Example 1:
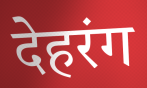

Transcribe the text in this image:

देहरंग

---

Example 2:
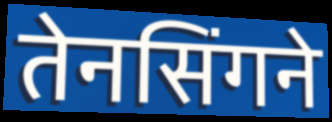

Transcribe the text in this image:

तेनसिंगने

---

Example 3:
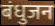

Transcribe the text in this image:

बंधुजन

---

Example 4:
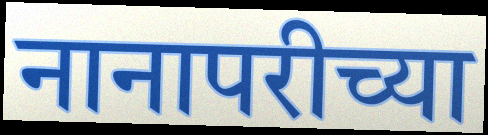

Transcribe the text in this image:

नानापरीच्या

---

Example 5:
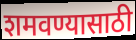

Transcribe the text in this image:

शमवण्यासाठी